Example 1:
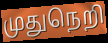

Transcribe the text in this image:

முதுநெறி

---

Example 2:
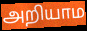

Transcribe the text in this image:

அறியாம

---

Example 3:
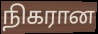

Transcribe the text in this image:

நிகரான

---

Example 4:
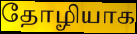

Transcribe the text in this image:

தோழியாக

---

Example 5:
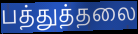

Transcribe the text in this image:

பத்துத்தலை